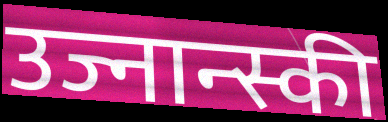
उज्नान्स्की